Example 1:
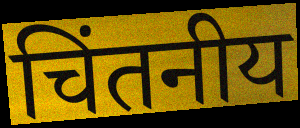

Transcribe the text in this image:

चिंतनीय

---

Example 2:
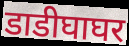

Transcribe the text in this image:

डाडीघाघर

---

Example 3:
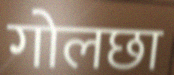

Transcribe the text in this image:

गोलछा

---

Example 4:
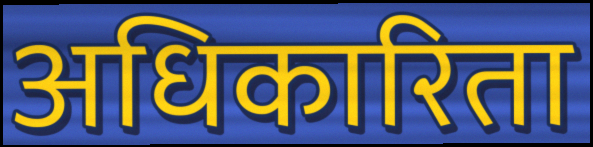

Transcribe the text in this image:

अधिकारिता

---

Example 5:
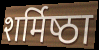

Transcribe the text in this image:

शर्मिष्‍ठा